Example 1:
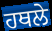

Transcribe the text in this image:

ਹਥਲੇ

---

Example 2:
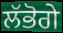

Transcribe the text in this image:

ਲੱਭੋਗੇ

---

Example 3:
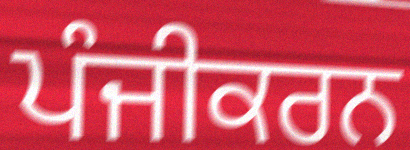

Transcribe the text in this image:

ਪੰਜੀਕਰਨ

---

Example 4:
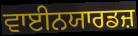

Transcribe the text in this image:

ਵਾਈਨਯਾਰਡਜ਼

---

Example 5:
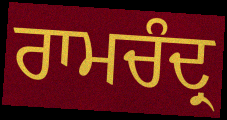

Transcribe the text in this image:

ਰਾਮਚੰਦ੍ਰ